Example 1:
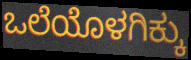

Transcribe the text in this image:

ಒಲೆಯೊಳಗಿಕ್ಕು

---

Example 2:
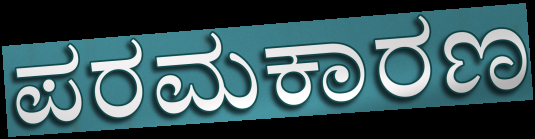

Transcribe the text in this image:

ಪರಮಕಾರಣ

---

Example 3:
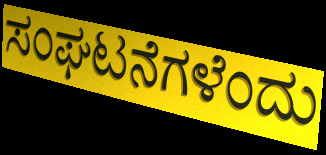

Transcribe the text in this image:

ಸಂಘಟನೆಗಳೆಂದು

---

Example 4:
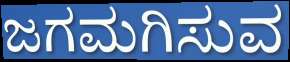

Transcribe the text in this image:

ಜಗಮಗಿಸುವ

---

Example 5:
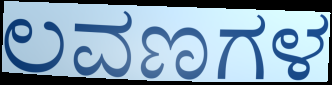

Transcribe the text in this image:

ಲವಣಗಳ